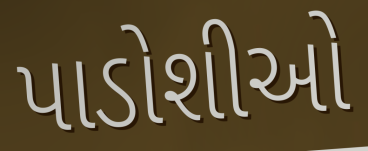
પાડોશીઓ